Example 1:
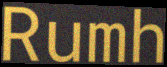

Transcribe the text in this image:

Rumh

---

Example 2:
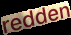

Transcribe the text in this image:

redden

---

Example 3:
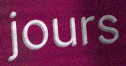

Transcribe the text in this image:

jours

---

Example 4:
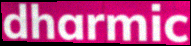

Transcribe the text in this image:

dharmic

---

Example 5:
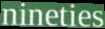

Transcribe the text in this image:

nineties